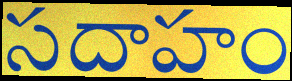
సదాహం